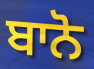
ਬਾਨੋ